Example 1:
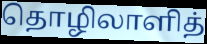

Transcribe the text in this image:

தொழிலாளித்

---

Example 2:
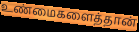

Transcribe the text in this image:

உண்மைகளைத்தான்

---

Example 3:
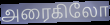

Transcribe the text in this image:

அரைகிலோ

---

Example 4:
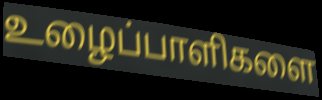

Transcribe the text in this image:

உழைப்பாளிகளை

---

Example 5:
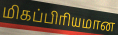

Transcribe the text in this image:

மிகப்பிரியமான